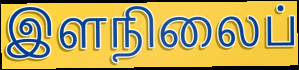
இளநிலைப்